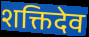
शक्तिदेव